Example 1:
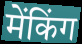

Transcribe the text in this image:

मेंकिंग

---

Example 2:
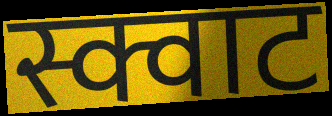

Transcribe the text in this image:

स्क्वाट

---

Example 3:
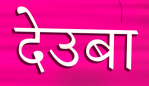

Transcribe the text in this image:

देउबा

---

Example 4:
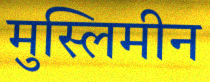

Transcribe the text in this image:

मुस्लिमीन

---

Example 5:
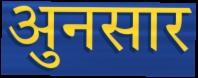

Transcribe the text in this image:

अुनसार